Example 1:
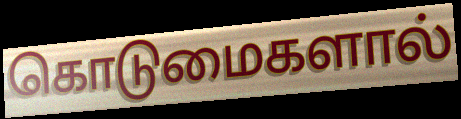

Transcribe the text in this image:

கொடுமைகளால்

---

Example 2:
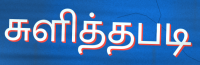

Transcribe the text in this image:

சுளித்தபடி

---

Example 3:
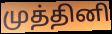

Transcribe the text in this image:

முத்தினி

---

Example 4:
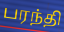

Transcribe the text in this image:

பரந்தி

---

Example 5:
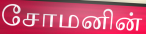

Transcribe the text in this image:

சோமனின்